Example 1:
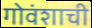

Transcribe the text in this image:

गोवंशाची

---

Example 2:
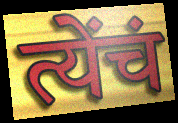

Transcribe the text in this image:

त्येंचं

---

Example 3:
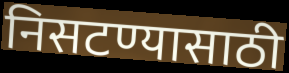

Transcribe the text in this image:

निसटण्यासाठी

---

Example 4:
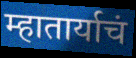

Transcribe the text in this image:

म्हातार्याचं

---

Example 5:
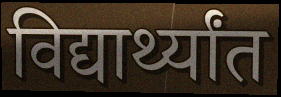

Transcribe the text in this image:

विद्यार्थ्यांत